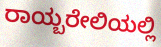
ರಾಯ್ಬರೇಲಿಯಲ್ಲಿ